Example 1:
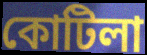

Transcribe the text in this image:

কোটিলা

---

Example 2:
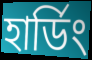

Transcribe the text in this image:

হার্ডিং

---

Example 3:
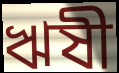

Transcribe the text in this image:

ঋষী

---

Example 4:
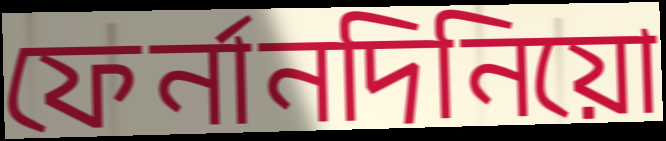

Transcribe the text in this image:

ফের্নানদিনিয়ো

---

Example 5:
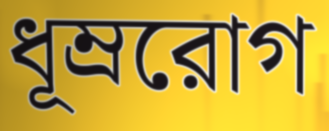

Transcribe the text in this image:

ধূম্ররোগ